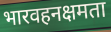
भारवहनक्षमता